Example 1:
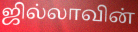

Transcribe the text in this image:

ஜில்லாவின்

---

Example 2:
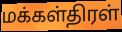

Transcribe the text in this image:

மக்கள்திரள்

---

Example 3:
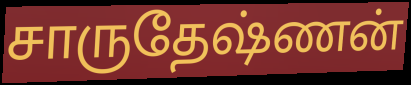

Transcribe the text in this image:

சாருதேஷ்ணன்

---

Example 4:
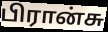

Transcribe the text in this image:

பிரான்சு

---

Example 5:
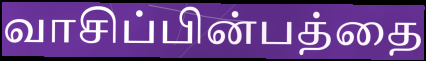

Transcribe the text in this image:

வாசிப்பின்பத்தை